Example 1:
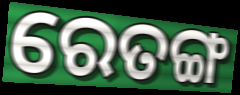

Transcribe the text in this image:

ରେତଙ୍ଗ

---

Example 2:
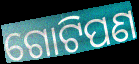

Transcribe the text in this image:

ଗୋଟିପଣ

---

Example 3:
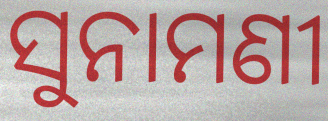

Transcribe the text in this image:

ସୁନାମଣୀ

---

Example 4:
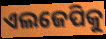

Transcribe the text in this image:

ଏଲଜେପିକୁ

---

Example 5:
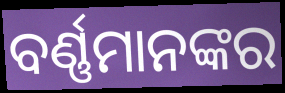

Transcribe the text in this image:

ବର୍ଣ୍ଣମାନଙ୍କର